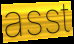
asst